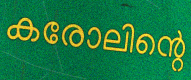
കരോലിന്റെ